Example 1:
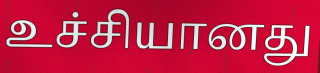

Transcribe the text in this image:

உச்சியானது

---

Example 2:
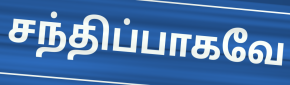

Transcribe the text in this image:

சந்திப்பாகவே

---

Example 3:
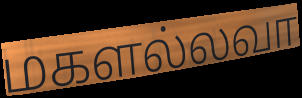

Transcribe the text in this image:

மகளல்லவா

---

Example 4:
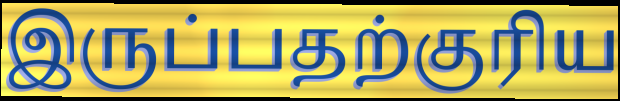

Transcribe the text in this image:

இருப்பதற்குரிய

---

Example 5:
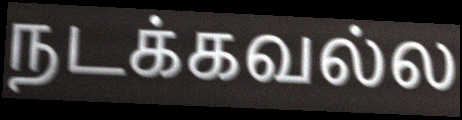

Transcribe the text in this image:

நடக்கவல்ல